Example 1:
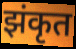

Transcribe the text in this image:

झंकृत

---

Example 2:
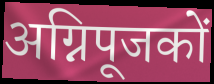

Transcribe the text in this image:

अग्निपूजकों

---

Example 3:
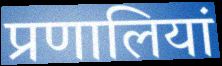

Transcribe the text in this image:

प्रणालियां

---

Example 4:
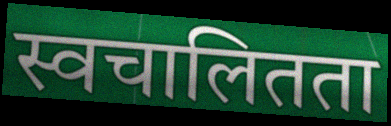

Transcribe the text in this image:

स्वचालितता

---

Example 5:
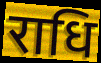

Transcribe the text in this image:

राधि